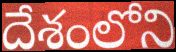
దేశంలోని